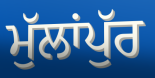
ਮੁੱਲਾਂਪੁੱਰ